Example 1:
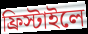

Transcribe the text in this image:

ফ্রিস্টাইলে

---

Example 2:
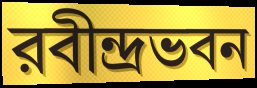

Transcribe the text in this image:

রবীন্দ্রভবন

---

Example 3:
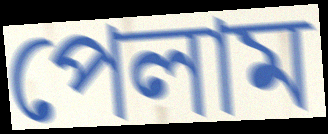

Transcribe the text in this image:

পেলাম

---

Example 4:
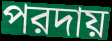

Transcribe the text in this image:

পরদায়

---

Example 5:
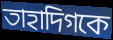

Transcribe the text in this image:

তাহাদিগকে